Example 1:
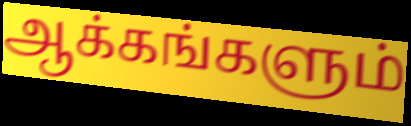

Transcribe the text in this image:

ஆக்கங்களும்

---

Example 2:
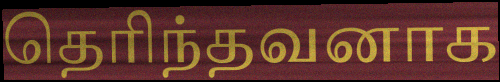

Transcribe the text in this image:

தெரிந்தவனாக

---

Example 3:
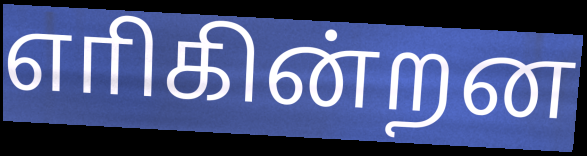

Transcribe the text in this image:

எரிகின்றன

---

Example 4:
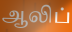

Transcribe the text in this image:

ஆலிப்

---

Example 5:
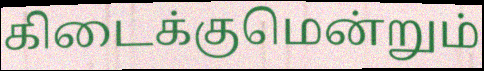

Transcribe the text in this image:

கிடைக்குமென்றும்